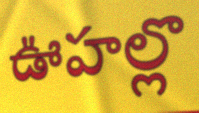
ఊహల్లొ